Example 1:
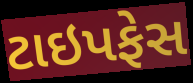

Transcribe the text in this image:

ટાઇપફેસ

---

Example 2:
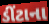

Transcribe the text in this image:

ડીંટાના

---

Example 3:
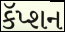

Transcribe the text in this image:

કૅપ્શન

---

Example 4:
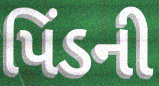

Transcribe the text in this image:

પિંડની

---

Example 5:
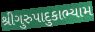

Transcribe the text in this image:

શ્રીગુરુપાદુકાભ્યામ